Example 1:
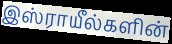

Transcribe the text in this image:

இஸ்ராயீல்களின்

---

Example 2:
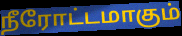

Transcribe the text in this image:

நீரோட்டமாகும்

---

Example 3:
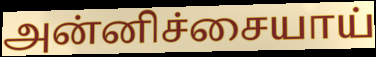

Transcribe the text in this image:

அன்னிச்சையாய்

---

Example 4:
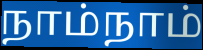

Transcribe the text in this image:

நாம்நாம்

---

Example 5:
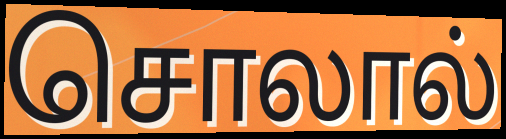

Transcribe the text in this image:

சொலால்